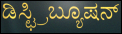
ಡಿಸ್ಟ್ರಿಬ್ಯೂಷನ್